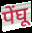
पेंघू